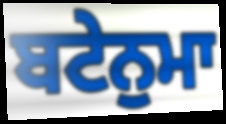
ਬਟੇਨੁਮਾ